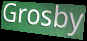
Grosby